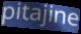
pitajine